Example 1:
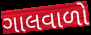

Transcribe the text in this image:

ગાલવાળો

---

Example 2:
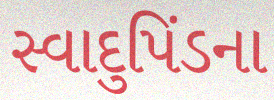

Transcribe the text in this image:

સ્વાદુપિંડના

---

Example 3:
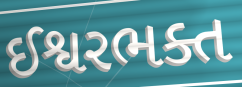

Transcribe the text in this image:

ઈશ્વરભક્ત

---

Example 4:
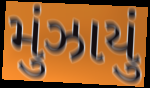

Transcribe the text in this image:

મુંઝાયું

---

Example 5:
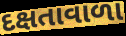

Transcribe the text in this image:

દક્ષતાવાળા